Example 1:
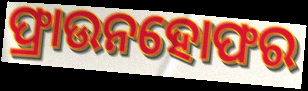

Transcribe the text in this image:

ଫ୍ରାଉନହୋଫର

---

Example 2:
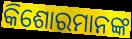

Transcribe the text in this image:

କିଶୋରମାନଙ୍କ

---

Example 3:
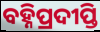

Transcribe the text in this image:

ବହ୍ନିପ୍ରଦୀପ୍ତି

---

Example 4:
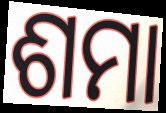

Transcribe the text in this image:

ଶମା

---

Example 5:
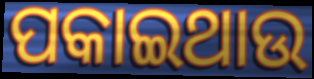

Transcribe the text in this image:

ପକାଇଥାଉ